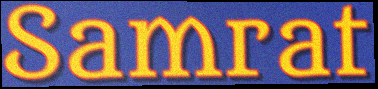
Samrat